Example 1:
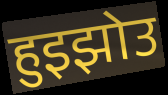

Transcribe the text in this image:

हुइझोउ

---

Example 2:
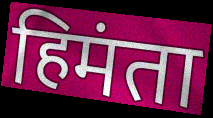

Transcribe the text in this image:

हिमंता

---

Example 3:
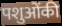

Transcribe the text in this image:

पशुओंकी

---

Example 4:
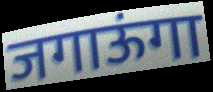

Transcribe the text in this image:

जगाऊंगा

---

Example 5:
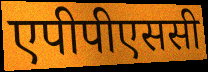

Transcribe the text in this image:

एपीपीएससी